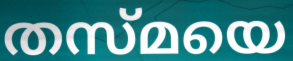
തസ്മയെ